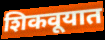
शिकवूयात